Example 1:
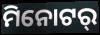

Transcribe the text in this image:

ମିନୋଟର୍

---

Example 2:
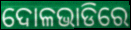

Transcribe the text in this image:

ଦୋଳଭାଡିରେ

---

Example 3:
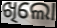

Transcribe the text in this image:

ଖିଲୋ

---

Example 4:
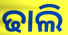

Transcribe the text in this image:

ଢାଲି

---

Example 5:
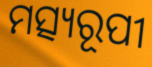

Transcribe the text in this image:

ମତ୍ସ୍ୟରୂପୀ